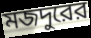
মজদুরের